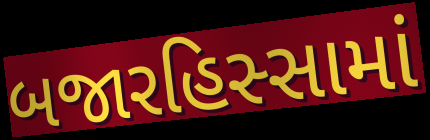
બજારહિસ્સામાં